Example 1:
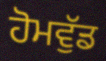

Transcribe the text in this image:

ਹੋਮਵੁੱਡ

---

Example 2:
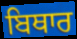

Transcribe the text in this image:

ਬਿਥਾਰ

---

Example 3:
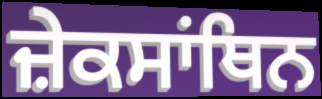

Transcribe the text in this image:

ਜ਼ੇਕਸਾਂਥਿਨ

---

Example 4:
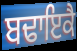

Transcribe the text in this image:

ਬਢਾਇਕੈ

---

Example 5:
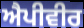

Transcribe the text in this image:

ਐਪੀਵੀਰ